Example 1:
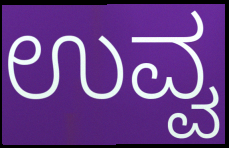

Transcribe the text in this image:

ಉವ್ವ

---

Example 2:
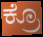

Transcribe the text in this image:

ಕ್ರೊ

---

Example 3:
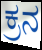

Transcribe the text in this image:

ಕ್ರನ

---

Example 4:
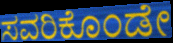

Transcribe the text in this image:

ಸವರಿಕೊಂಡೇ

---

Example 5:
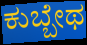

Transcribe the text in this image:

ಕುಬ್ಬೇಥ